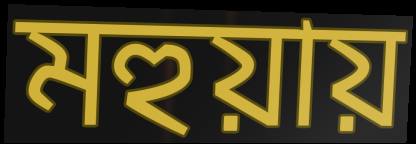
মহুয়ায়